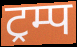
ट्रम्‍प